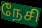
நேசி